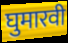
घुमारवी